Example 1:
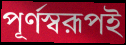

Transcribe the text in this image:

পূর্ণস্বরূপই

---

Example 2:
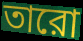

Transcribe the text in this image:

তারো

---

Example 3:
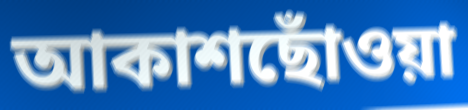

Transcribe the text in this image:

আকাশছোঁওয়া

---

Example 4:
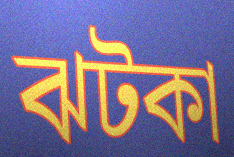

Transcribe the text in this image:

ঝটকা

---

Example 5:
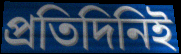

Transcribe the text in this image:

প্রতিদিনিই